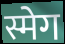
स्मेग